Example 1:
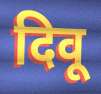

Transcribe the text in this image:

दिवू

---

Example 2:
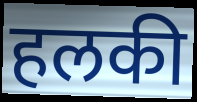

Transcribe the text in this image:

हलकी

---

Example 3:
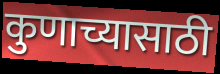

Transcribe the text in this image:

कुणाच्यासाठी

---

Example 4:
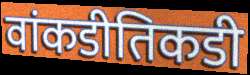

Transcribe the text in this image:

वांकडीतिकडी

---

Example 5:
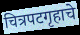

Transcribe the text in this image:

चित्रपटगृहाचे